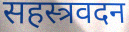
सहस्त्रवदन